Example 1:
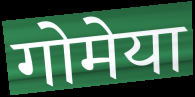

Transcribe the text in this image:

गोमेया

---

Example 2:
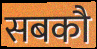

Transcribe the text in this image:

सबकौ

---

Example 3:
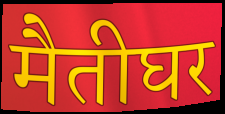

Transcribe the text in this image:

मैतीघर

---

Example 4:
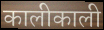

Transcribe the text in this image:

कालीकाली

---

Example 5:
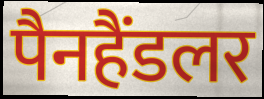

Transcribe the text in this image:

पैनहैंडलर